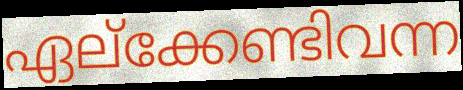
ഏല്ക്കേണ്ടിവന്ന